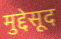
मुद्देसूद